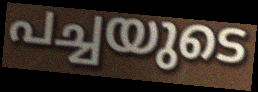
പച്ചയുടെ